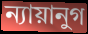
ন্যায়ানুগ